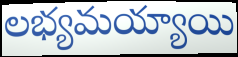
లభ్యమయ్యాయి